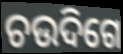
ଚଉଦିଗେ